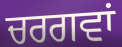
ਚਰਗਵਾਂ